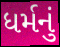
ધર્મનું